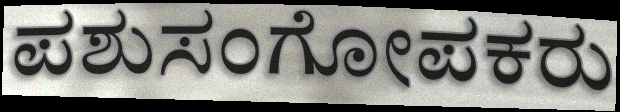
ಪಶುಸಂಗೋಪಕರು